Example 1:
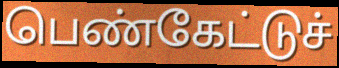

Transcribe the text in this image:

பெண்கேட்டுச்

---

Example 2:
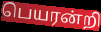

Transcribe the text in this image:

பெயரன்றி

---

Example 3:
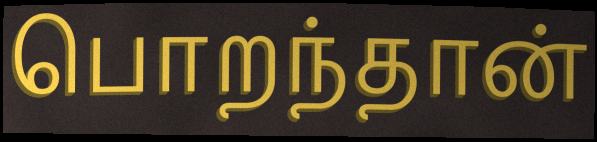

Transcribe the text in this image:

பொறந்தான்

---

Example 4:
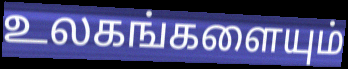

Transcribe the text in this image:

உலகங்களையும்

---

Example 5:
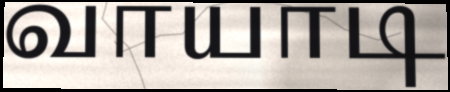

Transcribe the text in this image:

வாயாடி